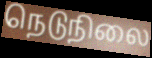
நெடுநிலை